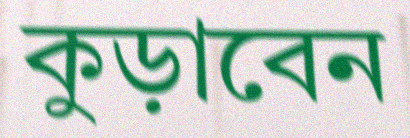
কুড়াবেন